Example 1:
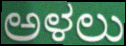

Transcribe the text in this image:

ಅಳಲು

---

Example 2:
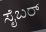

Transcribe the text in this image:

ಸೈಬರ್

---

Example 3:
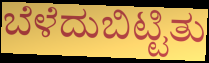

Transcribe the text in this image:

ಬೆಳೆದುಬಿಟ್ಟಿತು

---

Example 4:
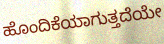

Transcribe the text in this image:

ಹೊಂದಿಕೆಯಾಗುತ್ತದೆಯೇ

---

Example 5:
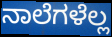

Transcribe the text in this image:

ನಾಲೆಗಳೆಲ್ಲ